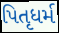
પિતૃધર્મ